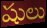
షులు